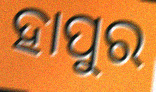
ହାପୁର